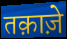
तक़ाज़े